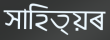
সাহিত্য়ৰ